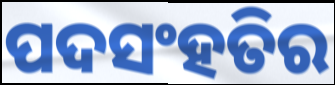
ପଦସଂହତିର